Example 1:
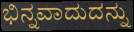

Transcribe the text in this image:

ಭಿನ್ನವಾದುದನ್ನು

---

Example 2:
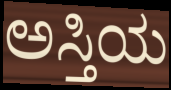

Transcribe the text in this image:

ಅಸ್ತಿಯ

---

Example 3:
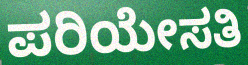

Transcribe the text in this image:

ಪರಿಯೇಸತಿ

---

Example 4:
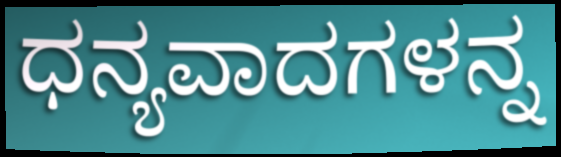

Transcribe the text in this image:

ಧನ್ಯವಾದಗಳನ್ನ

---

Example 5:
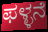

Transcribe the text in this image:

ಫಳ್ಳನೆ